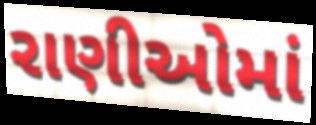
રાણીઓમાં